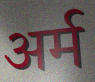
अर्म